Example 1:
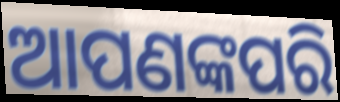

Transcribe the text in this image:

ଆପଣଙ୍କପରି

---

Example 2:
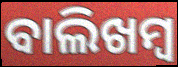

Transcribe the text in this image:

ବାଲିଖମ୍ବ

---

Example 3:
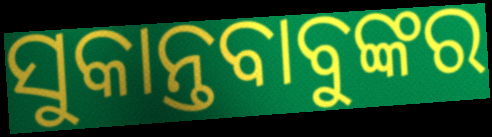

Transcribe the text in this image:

ସୁକାନ୍ତବାବୁଙ୍କର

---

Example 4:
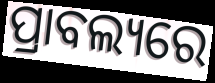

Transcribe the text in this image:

ପ୍ରାବଲ୍ୟରେ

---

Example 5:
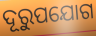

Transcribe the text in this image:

ଦୂରୁପଯୋଗ